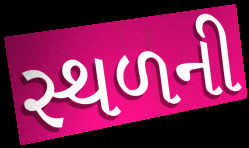
સ્થળની